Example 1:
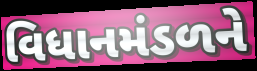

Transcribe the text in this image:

વિધાનમંડળને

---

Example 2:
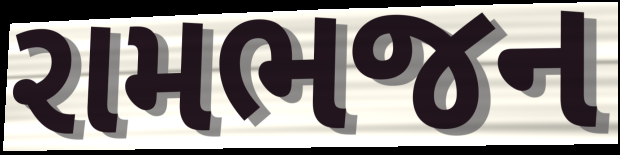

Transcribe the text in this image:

રામભજન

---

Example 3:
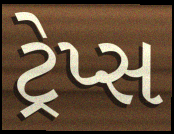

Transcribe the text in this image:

ટ્રેપ્સ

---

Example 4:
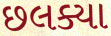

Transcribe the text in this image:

છલક્યા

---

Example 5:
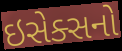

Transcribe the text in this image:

ઇસેક્સનો